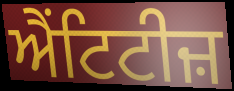
ਐਂਟਿਟੀਜ਼